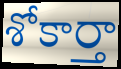
శోకార్తా